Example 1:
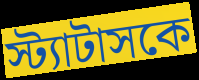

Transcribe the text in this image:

স্ট্যাটাসকে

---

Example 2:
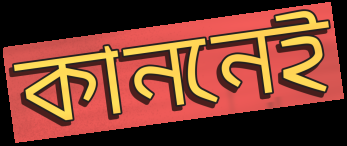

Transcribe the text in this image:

কাননেই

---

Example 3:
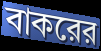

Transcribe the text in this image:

বাকরের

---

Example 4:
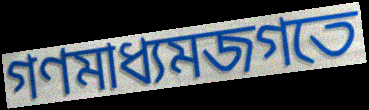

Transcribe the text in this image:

গণমাধ্যমজগতে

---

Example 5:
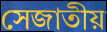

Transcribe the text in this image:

সেজাতীয়